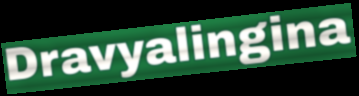
Dravyalingina